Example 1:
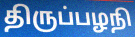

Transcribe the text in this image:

திருப்பழநி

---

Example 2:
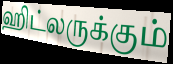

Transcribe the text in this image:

ஹிட்லருக்கும்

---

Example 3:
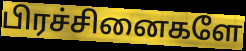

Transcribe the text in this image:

பிரச்சினைகளே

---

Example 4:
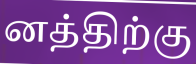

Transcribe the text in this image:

னத்திற்கு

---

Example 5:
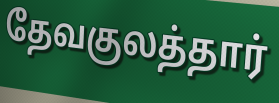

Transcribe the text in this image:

தேவகுலத்தார்